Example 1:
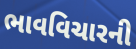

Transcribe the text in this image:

ભાવવિચારની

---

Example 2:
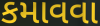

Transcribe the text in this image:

કમાવવા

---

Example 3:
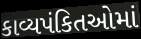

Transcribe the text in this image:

કાવ્યપંકિતઓમાં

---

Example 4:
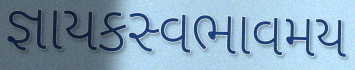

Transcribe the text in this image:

જ્ઞાયકસ્વભાવમય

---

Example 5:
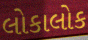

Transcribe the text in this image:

લોકાલોક